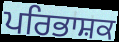
ਪਰਿਭਾਸ਼ਕ